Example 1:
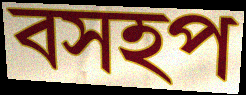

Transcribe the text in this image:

বসহপ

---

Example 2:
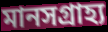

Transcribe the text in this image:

মানসগ্রাহ্য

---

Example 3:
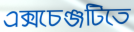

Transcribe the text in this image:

এক্সচেঞ্জটিতে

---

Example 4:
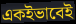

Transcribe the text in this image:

একইভাবেই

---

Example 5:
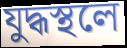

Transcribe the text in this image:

যুদ্ধস্থলে